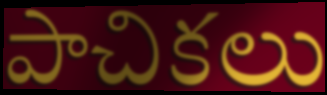
పాచికలు